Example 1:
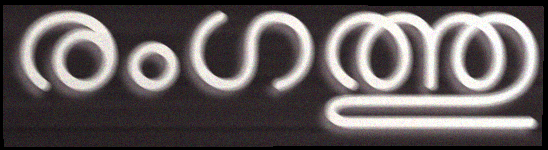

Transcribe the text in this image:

രംഗത്തു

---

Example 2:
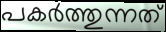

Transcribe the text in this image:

പകർത്തുന്നത്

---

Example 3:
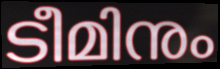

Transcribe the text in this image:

ടീമിനും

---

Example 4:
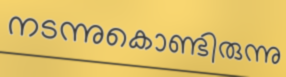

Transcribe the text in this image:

നടന്നുകൊണ്ടിരുന്നു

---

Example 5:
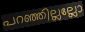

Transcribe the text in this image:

പറഞ്ഞില്ലല്ലോ